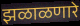
झळाळणारे